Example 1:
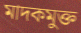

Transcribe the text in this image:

মাদকমুক্ত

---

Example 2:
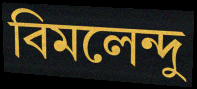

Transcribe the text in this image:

বিমলেন্দু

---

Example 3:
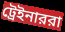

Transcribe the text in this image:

ট্রেইনাররা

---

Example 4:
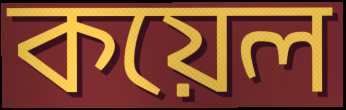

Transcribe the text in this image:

কয়েল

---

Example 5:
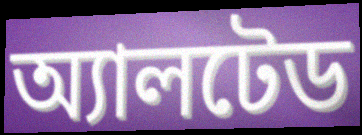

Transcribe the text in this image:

অ্যালটেড